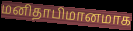
மனிதாபிமானமாக